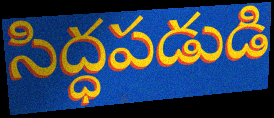
సిద్ధపడుడి